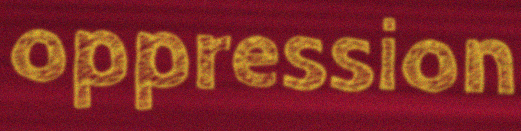
oppression